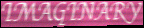
IMAGINARY